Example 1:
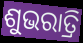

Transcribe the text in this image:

ଶୁଭରାତ୍ରି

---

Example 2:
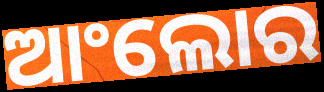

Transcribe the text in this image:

ଆଂଲୋର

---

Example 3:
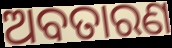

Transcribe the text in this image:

ଅବତାରଣ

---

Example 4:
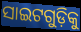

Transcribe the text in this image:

ସାଇଟଗୁଡ଼ିକୁ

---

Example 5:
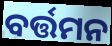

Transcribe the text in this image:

ବର୍ତ୍ତମନ